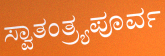
ಸ್ವಾತಂತ್ರ್ಯಪೂರ್ವ